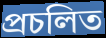
প্রচলিত